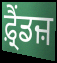
ਫ਼੍ਰੈਂਡਜ਼